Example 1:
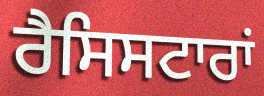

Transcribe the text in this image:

ਰੈਸਿਸਟਾਰਾਂ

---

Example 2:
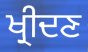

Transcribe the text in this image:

ਖ੍ਰੀਦਣ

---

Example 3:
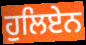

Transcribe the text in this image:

ਹੁਲਿਏਨ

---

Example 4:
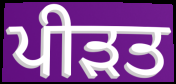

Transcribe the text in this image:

ਪੀਡ਼ਤ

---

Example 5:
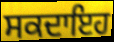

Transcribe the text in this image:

ਸਕਦਾਇਹ